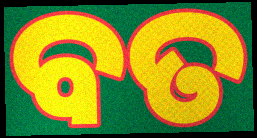
ବତ